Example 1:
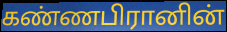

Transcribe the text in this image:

கண்ணபிரானின்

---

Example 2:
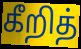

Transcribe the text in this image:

கீறித்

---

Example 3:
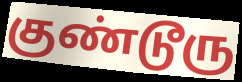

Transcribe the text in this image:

குண்டூரு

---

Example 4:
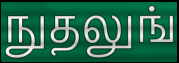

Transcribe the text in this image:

நுதலுங்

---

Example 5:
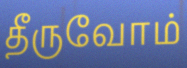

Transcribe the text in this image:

தீருவோம்